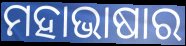
ମହାଭାଷାର